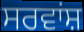
ਸਰਵਾਂਸ਼